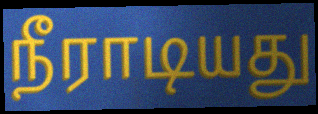
நீராடியது